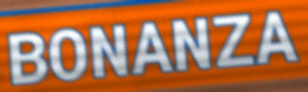
BONANZA